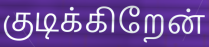
குடிக்கிறேன்